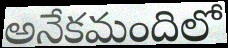
అనేకమందిలో